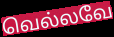
வெல்லவே